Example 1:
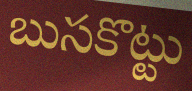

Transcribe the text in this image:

బుసకొట్టు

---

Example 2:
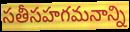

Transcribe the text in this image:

సతీసహగమనాన్ని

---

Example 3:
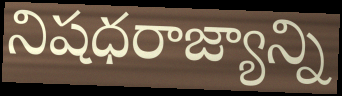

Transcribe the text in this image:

నిషధరాజ్యాన్ని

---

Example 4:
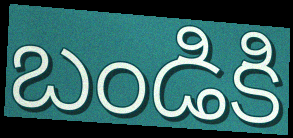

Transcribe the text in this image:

బండికి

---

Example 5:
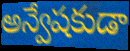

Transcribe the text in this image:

అన్వేషకుడా